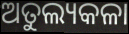
ଅତୁଲ୍ୟକଳା